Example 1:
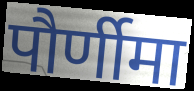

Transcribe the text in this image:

पौर्णीमा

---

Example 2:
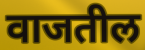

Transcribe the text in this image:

वाजतील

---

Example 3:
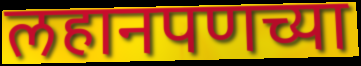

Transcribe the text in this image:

लहानपणच्या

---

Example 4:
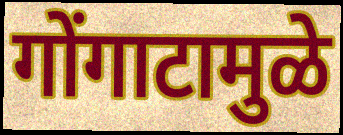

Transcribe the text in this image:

गोंगाटामुळे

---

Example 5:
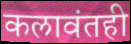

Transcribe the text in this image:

कलावंतही